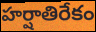
హర్షాతిరేకం